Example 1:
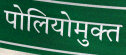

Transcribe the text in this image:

पोलियोमुक्त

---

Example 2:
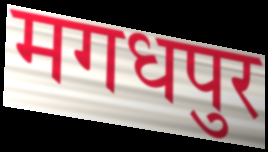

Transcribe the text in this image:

मगधपुर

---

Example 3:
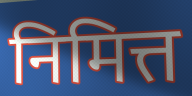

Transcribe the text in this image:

निमित्त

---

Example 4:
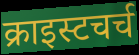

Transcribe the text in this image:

क्राइस्टचर्च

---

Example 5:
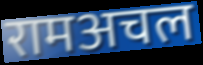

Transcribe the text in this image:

रामअचल